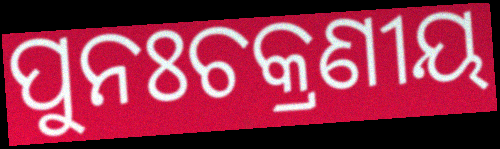
ପୁନଃଚକ୍ରଣୀୟ